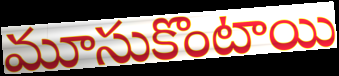
మూసుకొంటాయి